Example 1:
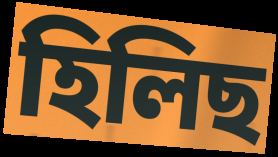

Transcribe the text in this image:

হিলিছ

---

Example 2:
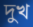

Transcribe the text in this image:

দুখ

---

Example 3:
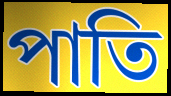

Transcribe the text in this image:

পাতি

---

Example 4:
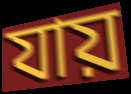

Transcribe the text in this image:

যায়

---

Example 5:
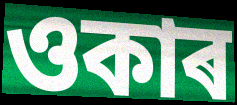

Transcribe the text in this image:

ওকাৰ